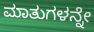
ಮಾತುಗಳನ್ನೇ